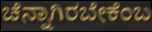
ಚೆನ್ನಾಗಿರಬೇಕೆಂಬ